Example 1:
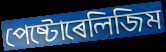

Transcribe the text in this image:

পেষ্টোৰেলিজিম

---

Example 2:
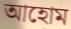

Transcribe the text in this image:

আহোম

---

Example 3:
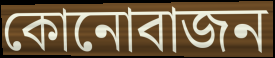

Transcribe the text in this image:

কোনোবাজন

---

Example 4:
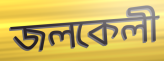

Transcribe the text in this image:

জলকেলী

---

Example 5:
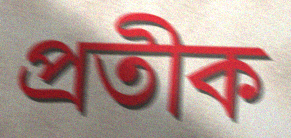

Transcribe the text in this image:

প্ৰতীক